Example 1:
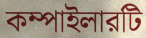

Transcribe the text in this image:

কম্পাইলারটি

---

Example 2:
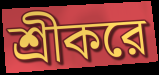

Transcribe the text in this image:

শ্রীকরে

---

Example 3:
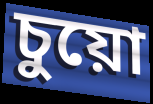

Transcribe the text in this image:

চুয়ো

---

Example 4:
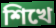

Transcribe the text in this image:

শিখে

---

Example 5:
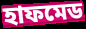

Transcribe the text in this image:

হাফমেড